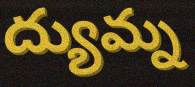
ద్యుమ్న